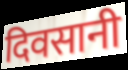
दिवसानी